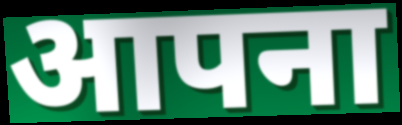
आपना